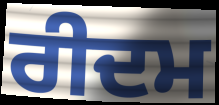
ਰੀਦਮ